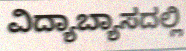
ವಿದ್ಯಾಬ್ಯಾಸದಲ್ಲಿ